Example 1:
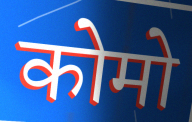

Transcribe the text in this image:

कोमो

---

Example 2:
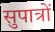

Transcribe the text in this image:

सुपात्रों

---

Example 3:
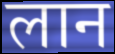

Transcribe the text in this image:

लान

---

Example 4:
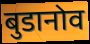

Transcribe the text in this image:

बुडानोव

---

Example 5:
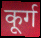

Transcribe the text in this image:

कूर्ग